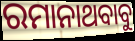
ରମାନାଥବାବୁ